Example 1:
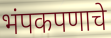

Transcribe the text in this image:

भंपकपणाचे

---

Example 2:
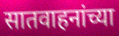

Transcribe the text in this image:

सातवाहनांच्या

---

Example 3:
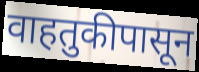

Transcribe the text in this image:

वाहतुकीपासून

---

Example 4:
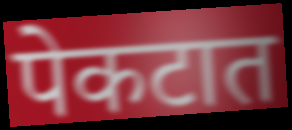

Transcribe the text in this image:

पेकटात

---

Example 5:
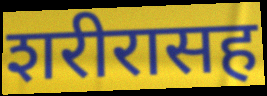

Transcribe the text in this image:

शरीरासह